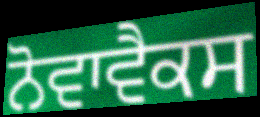
ਨੋਵਾਵੈਕਸ